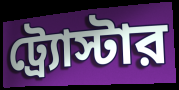
ট্র্যোস্টার